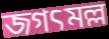
জগৎমল্ল